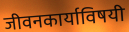
जीवनकार्याविषयी